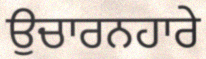
ਉਚਾਰਨਹਾਰੇ